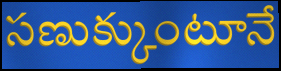
సణుక్కుంటూనే